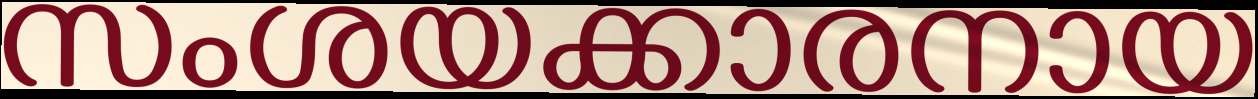
സംശയക്കാരനായ